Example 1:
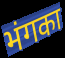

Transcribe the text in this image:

भंगका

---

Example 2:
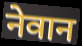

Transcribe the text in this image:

नेवान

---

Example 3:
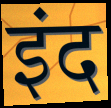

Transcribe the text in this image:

इंद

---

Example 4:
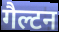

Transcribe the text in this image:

गैल्टन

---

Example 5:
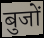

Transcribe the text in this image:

बुजों